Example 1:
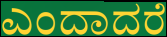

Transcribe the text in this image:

ಎಂದಾದರೆ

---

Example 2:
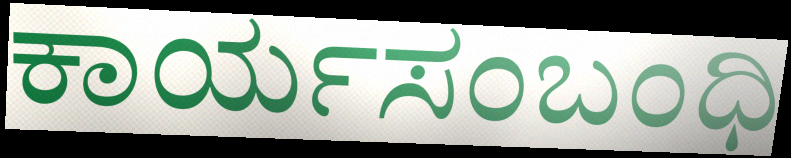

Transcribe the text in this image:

ಕಾರ್ಯಸಂಬಂಧಿ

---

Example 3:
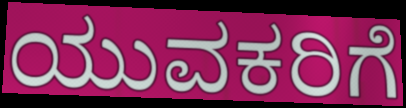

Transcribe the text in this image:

ಯುವಕರಿಗೆ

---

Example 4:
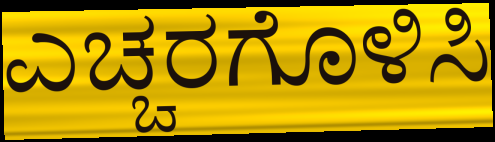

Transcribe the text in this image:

ಎಚ್ಚರಗೊಳಿಸಿ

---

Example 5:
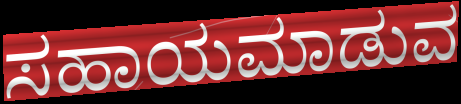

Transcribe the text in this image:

ಸಹಾಯಮಾಡುವ